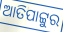
ଆତିପାଟ୍ଟୁର